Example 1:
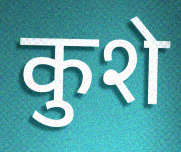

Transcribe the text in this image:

कुशे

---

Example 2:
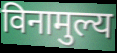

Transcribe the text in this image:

विनामुल्य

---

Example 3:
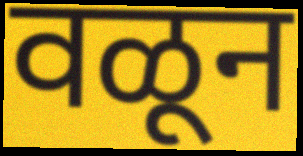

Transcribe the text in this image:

वळून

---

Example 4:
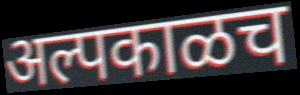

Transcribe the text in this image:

अल्पकाळच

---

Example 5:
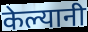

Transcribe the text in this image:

केल्यानी